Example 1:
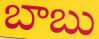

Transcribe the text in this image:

బాబు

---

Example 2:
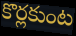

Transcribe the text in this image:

కొర్లకుంట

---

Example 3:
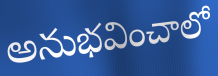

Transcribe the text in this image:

అనుభవించాలో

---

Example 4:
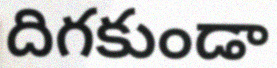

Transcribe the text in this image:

దిగకుండా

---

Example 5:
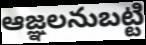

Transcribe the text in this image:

ఆజ్ఞలనుబట్టి